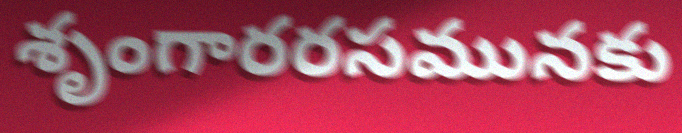
శృంగారరసమునకు